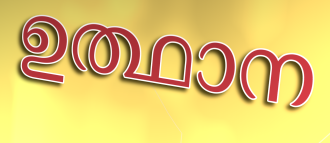
ഉത്ഥാന